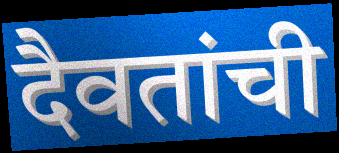
दैवतांची